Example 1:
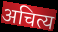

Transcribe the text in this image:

अचित्य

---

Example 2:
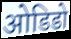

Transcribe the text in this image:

ओडिडो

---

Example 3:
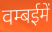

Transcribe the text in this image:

वम्बईमें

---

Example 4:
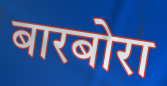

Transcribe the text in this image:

बारबोरा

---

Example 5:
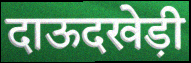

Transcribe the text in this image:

दाऊदखेड़ी